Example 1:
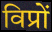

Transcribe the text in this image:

विप्रों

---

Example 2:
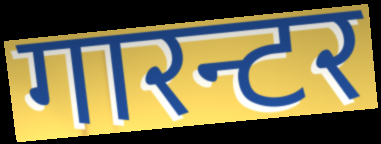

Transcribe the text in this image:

गारन्टर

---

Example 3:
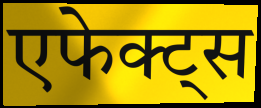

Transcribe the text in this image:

एफेक्ट्स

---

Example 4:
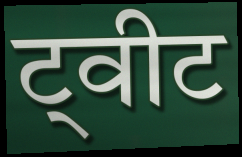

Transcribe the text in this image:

ट्‌वीट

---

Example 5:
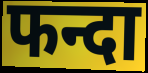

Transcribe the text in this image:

फन्दा